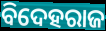
ବିଦେହରାଜ